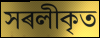
সৰলীকৃত